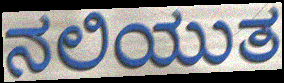
ನಲಿಯುತ